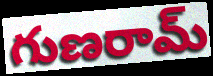
గుణరామ్